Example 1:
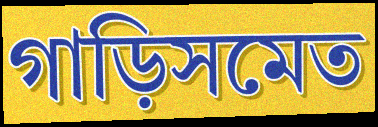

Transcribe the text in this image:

গাড়িসমেত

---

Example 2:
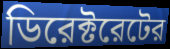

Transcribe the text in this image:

ডিরেক্টরেটের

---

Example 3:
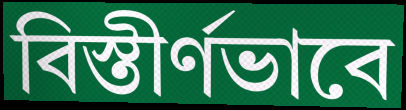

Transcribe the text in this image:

বিস্তীর্ণভাবে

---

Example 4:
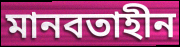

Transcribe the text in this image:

মানবতাহীন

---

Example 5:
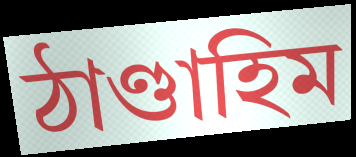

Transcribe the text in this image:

ঠাণ্ডাহিম